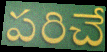
పరిచే